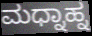
ಮಧ್ನಾಹ್ನ